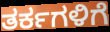
ತರ್ಕಗಳಿಗೆ